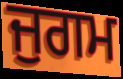
ਜੁਗਮ